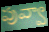
పువ్వా